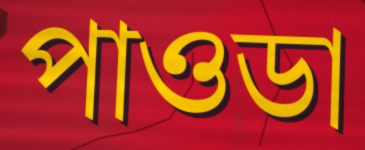
পাওডা